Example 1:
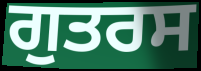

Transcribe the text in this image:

ਗੁਤਰਸ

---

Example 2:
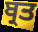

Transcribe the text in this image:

ਬ੍ਰਤ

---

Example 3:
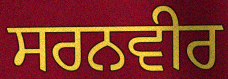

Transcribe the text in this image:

ਸਰਨਵੀਰ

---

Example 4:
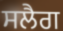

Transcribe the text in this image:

ਸਲੈਗ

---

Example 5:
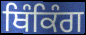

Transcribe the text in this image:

ਥਿੰਕਿੰਗ